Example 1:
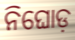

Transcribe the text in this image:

ନିଘୋଡ଼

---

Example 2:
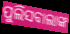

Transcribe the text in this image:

ପୁଲିସବାଲାଙ୍କ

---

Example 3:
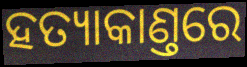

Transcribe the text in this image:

ହତ୍ୟାକାଣ୍ତରେ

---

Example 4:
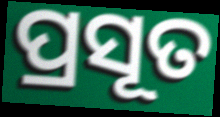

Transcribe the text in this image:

ପ୍ରସୂତ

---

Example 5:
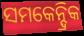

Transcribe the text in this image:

ସମକେନ୍ଦ୍ରିକ